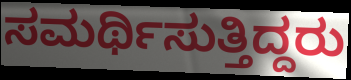
ಸಮರ್ಥಿಸುತ್ತಿದ್ದರು